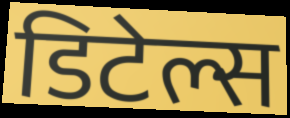
डिटेल्स